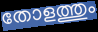
തോളത്തും